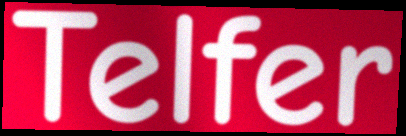
Telfer